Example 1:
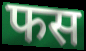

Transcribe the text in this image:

फस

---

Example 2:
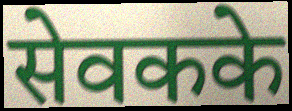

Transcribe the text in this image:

सेवकके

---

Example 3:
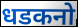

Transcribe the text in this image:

धडकनो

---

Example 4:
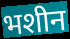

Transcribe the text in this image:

भशीन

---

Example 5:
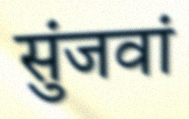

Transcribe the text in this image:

सुंजवां